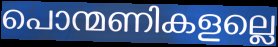
പൊന്മണികളല്ലെ